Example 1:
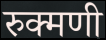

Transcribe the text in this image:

रुक्मणी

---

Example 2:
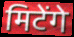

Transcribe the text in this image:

मिटेंगे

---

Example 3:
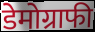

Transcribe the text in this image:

डेमोग्राफी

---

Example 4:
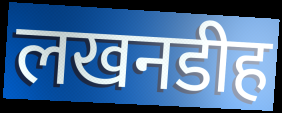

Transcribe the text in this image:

लखनडीह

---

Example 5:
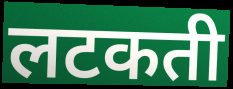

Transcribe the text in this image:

लटकती